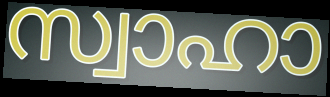
സ്വാഹാ